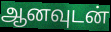
ஆனவுடன்